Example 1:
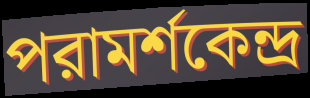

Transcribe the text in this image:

পরামর্শকেন্দ্র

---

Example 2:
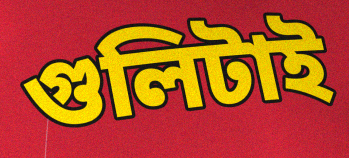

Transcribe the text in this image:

গুলিটাই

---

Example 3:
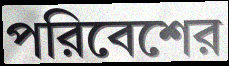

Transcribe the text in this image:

পরিবেশের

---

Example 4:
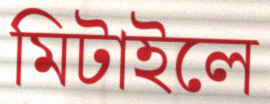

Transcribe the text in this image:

মিটাইলে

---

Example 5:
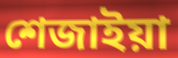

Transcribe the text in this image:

শেজাইয়া